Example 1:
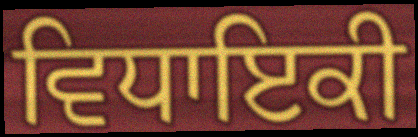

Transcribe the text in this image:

ਵਿਧਾਇਕੀ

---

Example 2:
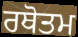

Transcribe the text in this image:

ਰਥੋਤਮ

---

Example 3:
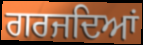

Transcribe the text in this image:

ਗਰਜਦਿਆਂ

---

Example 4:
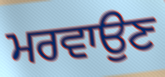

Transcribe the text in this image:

ਮਰਵਾਉਣ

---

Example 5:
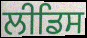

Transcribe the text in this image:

ਲੀਡਿਸ